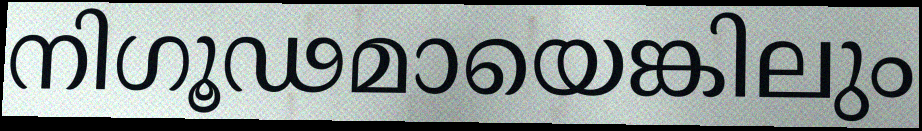
നിഗൂഢമായെങ്കിലും